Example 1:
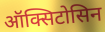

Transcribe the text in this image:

ऑक्सिटोसिन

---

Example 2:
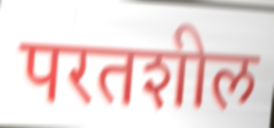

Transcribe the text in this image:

परतशील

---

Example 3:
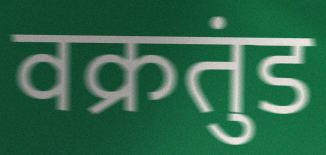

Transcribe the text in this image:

वक्रतुंड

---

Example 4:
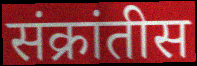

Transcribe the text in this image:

संक्रांतीस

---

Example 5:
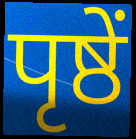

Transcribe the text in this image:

पृष्ठें